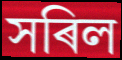
সৰিল